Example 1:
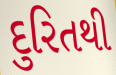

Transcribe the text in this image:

દુરિતથી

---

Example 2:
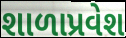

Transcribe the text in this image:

શાળાપ્રવેશ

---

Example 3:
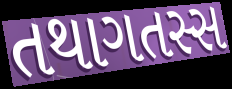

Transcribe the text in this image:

તથાગતસ્સ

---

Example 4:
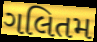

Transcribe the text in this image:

ગલિતમ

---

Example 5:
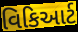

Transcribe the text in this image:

વિકિઆર્ટ